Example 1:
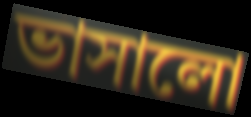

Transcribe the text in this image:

ভাসালো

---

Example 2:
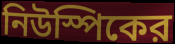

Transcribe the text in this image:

নিউস্পিকের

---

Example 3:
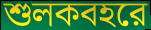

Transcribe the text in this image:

শুলকবহরে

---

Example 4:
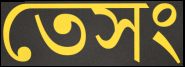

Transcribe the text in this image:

তেসং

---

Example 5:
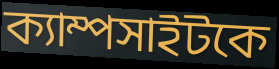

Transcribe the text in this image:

ক্যাম্পসাইটকে